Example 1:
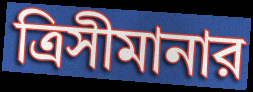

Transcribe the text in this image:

ত্রিসীমানার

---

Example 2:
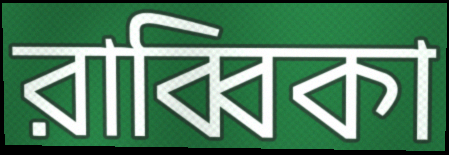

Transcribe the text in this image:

রাব্বিকা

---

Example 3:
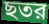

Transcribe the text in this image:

ছতর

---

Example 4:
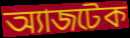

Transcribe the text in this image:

অ্যাজটেক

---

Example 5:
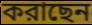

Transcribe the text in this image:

করাছেন